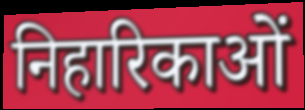
निहारिकाओं